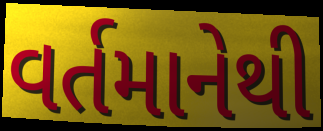
વર્તમાનેથી